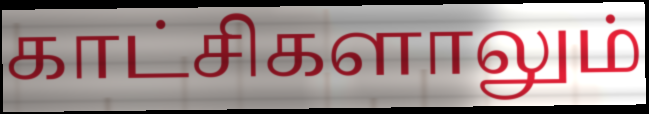
காட்சிகளாலும்